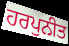
ਹਰਪੁਨੀਤ